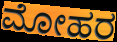
ಮೋಹರ